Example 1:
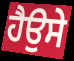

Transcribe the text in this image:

ਹੈਉਸੇ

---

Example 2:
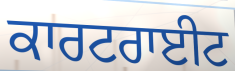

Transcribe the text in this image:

ਕਾਰਟਰਾਈਟ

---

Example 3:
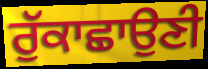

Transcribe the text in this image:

ਰੁੱਕਾਛਾਉਣੀ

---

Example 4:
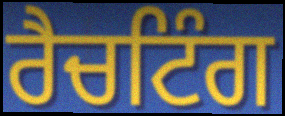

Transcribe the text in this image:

ਰੈਚਟਿੰਗ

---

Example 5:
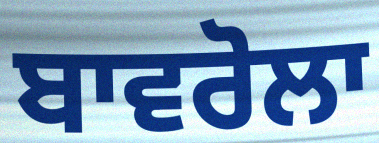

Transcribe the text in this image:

ਬਾਵਰੋਲਾ